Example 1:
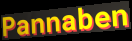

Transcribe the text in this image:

Pannaben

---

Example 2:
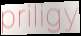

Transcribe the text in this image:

priligy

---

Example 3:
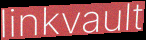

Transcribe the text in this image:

linkvault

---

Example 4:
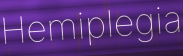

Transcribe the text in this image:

Hemiplegia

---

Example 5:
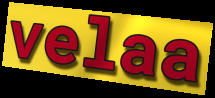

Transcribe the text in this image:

velaa